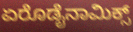
ಏರೊಡೈನಾಮಿಕ್ಸ್